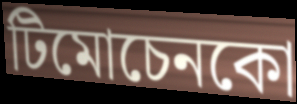
টিমোচেনকো